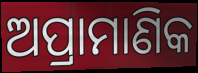
ଅପ୍ରାମାଣିକ